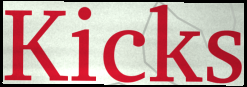
Kicks